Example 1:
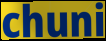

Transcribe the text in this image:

chuni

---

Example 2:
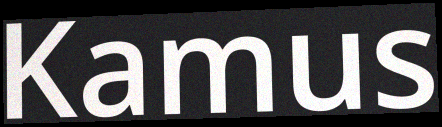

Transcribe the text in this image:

Kamus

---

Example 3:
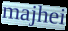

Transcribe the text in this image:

majhei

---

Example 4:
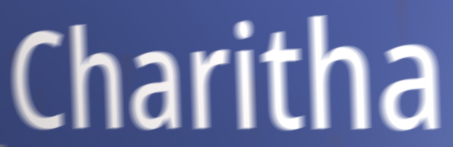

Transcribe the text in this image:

Charitha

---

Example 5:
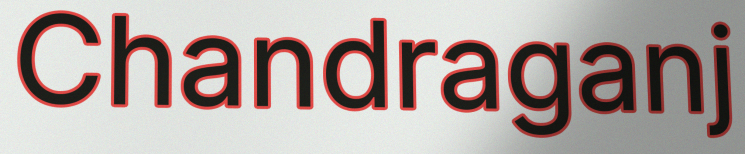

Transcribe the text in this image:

Chandraganj